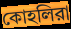
কোহলিরা